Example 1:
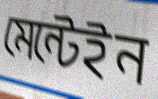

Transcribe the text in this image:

মেন্টেইন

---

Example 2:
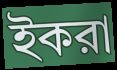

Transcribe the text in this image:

ইকরা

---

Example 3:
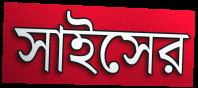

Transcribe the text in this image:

সাইসের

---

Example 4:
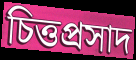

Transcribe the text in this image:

চিত্তপ্রসাদ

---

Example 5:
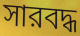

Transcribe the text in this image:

সারবদ্ধ